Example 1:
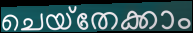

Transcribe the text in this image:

ചെയ്‌തേക്കാം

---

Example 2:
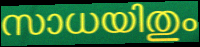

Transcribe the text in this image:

സാധയിതും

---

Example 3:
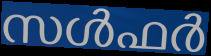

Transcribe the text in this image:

സൾഫർ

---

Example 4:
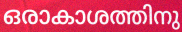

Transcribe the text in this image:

ഒരാകാശത്തിനു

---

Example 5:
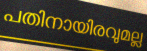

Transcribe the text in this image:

പതിനായിരവുമല്ല